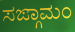
ಸಙ್ಗಾಮಂ